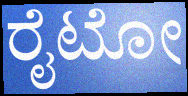
ರೈಟೋ